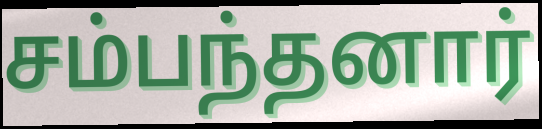
சம்பந்தனார்